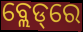
ବ୍ଲେଡ୍‌ରେ